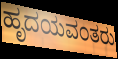
ಹೃದಯವಂತರು